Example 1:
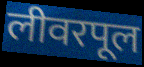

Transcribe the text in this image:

लीवरपूल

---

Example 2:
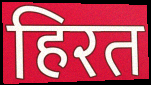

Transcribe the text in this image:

हिरत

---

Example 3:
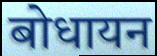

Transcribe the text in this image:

बोधायन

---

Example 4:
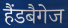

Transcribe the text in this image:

हैंडबैगेज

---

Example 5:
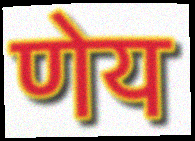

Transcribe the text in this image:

णेय